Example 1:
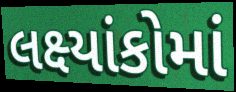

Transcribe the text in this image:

લક્ષ્યાંકોમાં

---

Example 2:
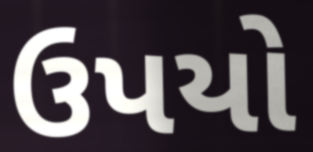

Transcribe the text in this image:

ઉપયો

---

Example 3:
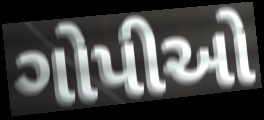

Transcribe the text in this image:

ગોપીઓ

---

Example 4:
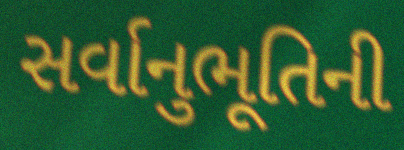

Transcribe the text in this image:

સર્વાનુભૂતિની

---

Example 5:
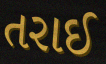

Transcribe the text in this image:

તરાઈ